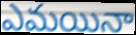
ఎమయినా